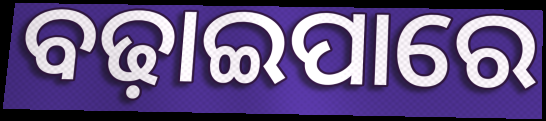
ବଢ଼ାଇପାରେ